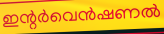
ഇന്റർവെൻഷണൽ